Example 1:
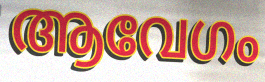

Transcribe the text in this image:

ആവേഗം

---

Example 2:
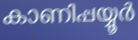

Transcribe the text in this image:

കാണിപ്പയ്യൂർ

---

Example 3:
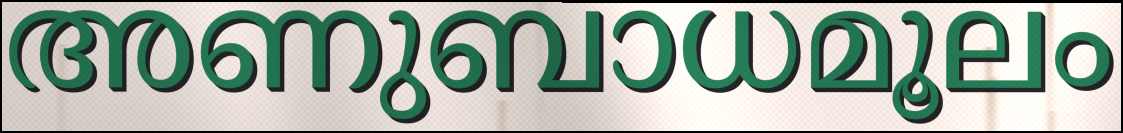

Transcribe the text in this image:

അണുബാധമൂലം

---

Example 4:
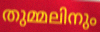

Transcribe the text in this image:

തുമ്മലിനും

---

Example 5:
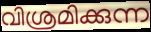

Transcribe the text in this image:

വിശ്രമിക്കുന്ന